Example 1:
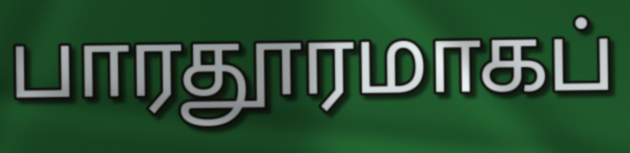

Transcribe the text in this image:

பாரதூரமாகப்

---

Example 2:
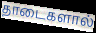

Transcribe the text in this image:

தாடைகளால்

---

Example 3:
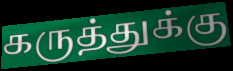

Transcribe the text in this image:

கருத்துக்கு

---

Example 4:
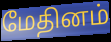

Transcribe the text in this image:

மேதினம்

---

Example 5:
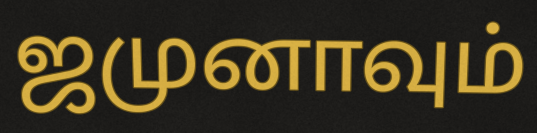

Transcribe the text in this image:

ஜமுனாவும்